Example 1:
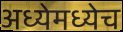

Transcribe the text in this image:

अध्येमध्येच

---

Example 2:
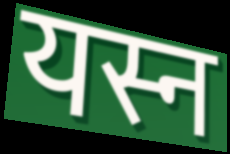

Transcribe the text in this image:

यस्न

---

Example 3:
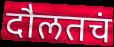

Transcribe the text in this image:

दौलतचं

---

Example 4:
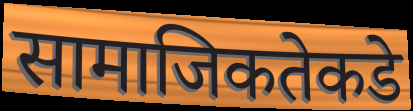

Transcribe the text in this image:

सामाजिकतेकडे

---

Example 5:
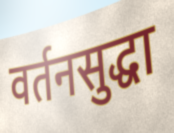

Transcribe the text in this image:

वर्तनसुद्धा